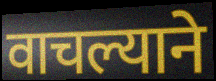
वाचल्याने